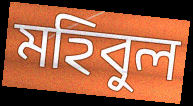
মহিবুল